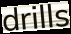
drills